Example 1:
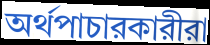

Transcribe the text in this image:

অর্থপাচারকারীরা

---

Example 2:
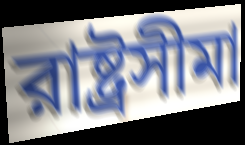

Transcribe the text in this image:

রাষ্ট্রসীমা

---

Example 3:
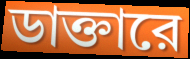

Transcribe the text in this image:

ডাক্তারে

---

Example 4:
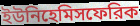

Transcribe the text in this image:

ইউনিহেমিসফেরিক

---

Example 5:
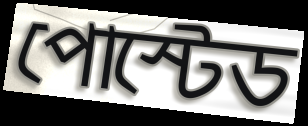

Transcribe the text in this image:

পোস্টেড